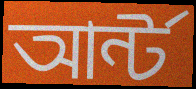
আর্ন্ট